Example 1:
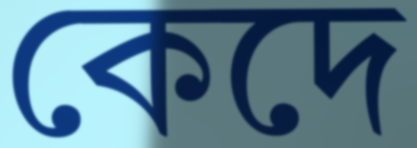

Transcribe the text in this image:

কেদে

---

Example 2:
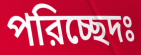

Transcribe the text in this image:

পরিচ্ছেদঃ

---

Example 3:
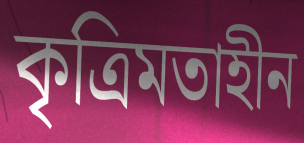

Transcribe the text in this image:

কৃত্রিমতাহীন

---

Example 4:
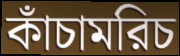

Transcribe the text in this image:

কাঁচামরিচ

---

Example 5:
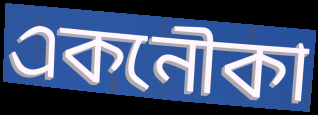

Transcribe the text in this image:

একনৌকা